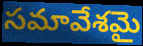
సమావేశమై